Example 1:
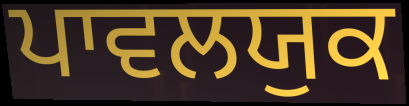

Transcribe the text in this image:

ਪਾਵਲਯੁਕ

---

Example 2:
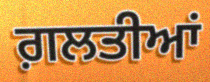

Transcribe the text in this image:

ਗ਼ਲਤੀਆਂ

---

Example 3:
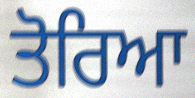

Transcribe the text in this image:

ਤੋਰਿਆ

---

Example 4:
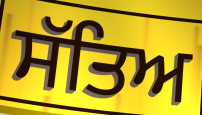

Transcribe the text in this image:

ਸੱਤਿਅ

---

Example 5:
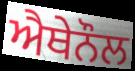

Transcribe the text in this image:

ਐਥੇਨੌਲ